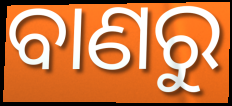
ବାଣରୁ